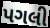
પગલી